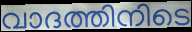
വാദത്തിനിടെ